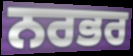
ਨਰਭਰ